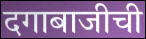
दगाबाजीची